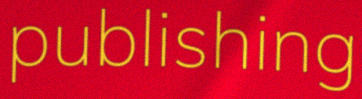
publishing